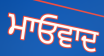
ਮਾਓਵਾਦ